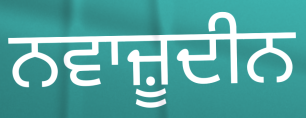
ਨਵਾਜ਼ੂਦੀਨ